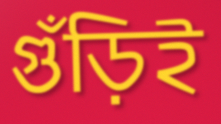
গুঁড়িই